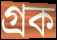
গ্রক